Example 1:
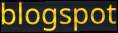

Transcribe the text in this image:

blogspot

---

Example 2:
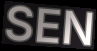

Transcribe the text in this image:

SEN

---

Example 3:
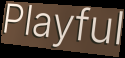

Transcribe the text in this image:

Playful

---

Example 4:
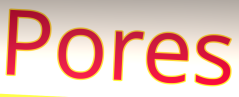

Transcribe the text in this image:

Pores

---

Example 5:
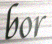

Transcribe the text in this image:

bor